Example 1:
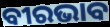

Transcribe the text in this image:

ବୀରଭାବ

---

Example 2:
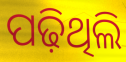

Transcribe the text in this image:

ପଢ଼ିଥିଲି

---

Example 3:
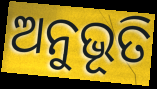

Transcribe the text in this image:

ଅନୁଭୂତି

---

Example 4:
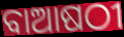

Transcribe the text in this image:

ବାଆଷଠୀ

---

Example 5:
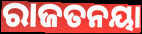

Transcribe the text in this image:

ରାଜତନୟା